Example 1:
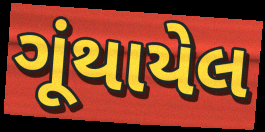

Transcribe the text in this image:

ગૂંથાયેલ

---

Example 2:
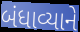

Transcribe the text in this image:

બંધાવ્યાને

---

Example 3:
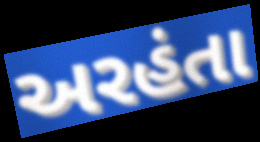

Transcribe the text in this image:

અરહંતા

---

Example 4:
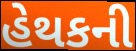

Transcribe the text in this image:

હેથકની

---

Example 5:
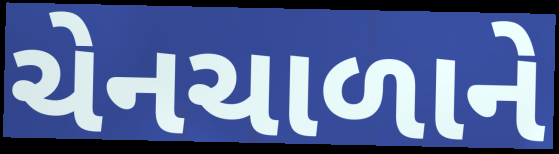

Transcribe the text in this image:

ચેનચાળાને